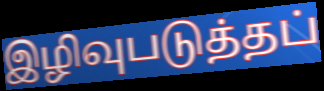
இழிவுபடுத்தப்